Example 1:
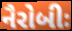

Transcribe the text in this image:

નૈરોબીઃ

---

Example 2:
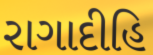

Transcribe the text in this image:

રાગાદીહિ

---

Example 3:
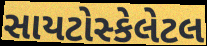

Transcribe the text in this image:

સાયટોસ્કેલેટલ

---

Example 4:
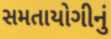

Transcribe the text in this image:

સમતાયોગીનું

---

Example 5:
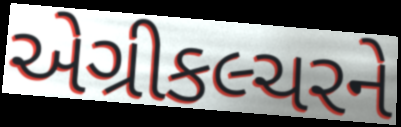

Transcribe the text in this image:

એગ્રીકલ્ચરને